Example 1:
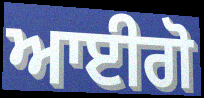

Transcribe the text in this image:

ਆਈਗੋ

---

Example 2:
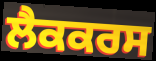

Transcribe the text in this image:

ਲੈਕਕਰਸ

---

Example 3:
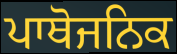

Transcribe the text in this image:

ਪਾਥੋਜਨਿਕ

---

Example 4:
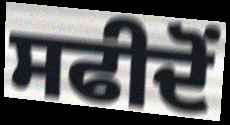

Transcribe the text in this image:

ਸਫੀਦੋਂ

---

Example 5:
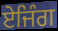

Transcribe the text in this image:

ਏਜਿੰਗ